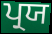
ਪ੍ਰਯ